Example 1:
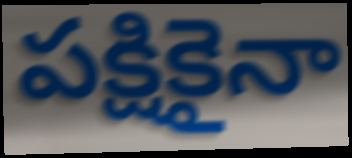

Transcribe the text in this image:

పక్షికైనా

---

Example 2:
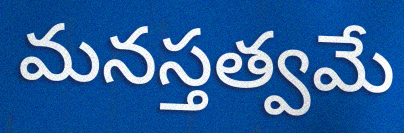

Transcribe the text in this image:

మనస్తత్వమే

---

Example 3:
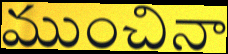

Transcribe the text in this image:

ముంచినా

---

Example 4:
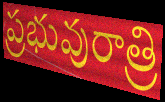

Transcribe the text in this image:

ప్రభువురాత్రి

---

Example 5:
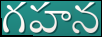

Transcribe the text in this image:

గహన